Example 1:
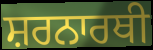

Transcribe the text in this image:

ਸ਼ਰਨਾਰਥੀ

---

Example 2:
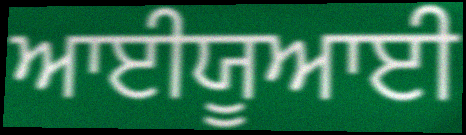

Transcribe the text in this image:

ਆਈਯੂਆਈ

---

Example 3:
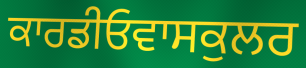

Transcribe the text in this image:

ਕਾਰਡੀਓਵਾਸਕੁਲਰ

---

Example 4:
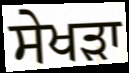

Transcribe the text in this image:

ਸੇਖੜਾ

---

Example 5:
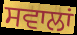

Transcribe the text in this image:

ਸਵਾਲਾਂ